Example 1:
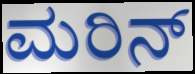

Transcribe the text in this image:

ಮರಿನ್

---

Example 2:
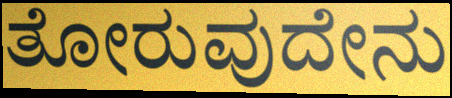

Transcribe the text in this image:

ತೋರುವುದೇನು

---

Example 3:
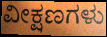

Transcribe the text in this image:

ವೀಕ್ಷಣಗಳು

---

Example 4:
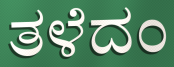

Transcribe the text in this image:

ತಳೆದಂ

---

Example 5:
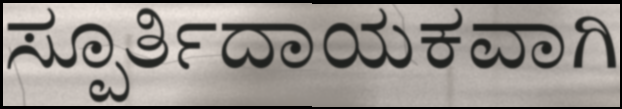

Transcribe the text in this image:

ಸ್ಪೂರ್ತಿದಾಯಕವಾಗಿ